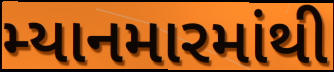
મ્યાનમારમાંથી